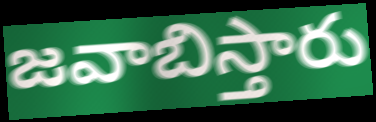
జవాబిస్తారు